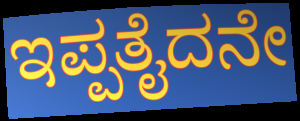
ಇಪ್ಪತೈದನೇ